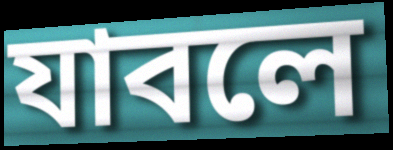
যাবলে